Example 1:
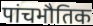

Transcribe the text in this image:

पांचभौतिक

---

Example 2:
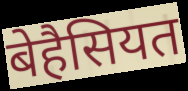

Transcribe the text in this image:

बेहैसियत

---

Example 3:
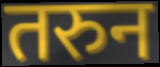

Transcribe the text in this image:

तरुन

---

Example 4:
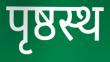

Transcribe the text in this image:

पृष्ठस्थ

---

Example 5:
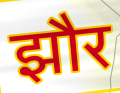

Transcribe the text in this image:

झौर